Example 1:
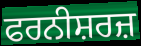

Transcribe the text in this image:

ਫਰਨੀਸ਼ਰਜ਼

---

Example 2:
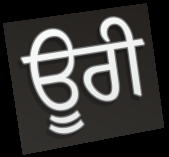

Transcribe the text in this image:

ਊਰੀ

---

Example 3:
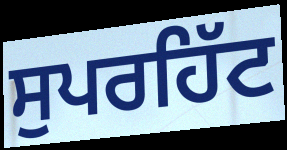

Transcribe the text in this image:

ਸੁਪਰਹਿੱਟ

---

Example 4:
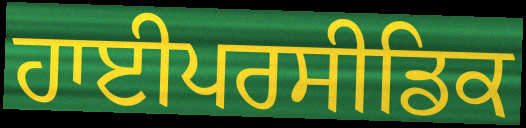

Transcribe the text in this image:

ਹਾਈਪਰਸੀਡਿਕ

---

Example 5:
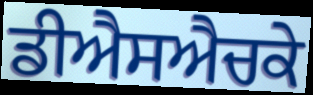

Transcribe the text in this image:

ਡੀਐਸਐਚਕੇ